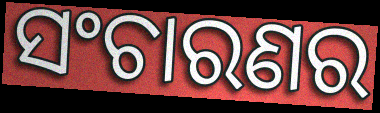
ସଂଚାରଣର